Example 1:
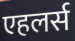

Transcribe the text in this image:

एहलर्स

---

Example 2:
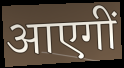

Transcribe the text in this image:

आएगीं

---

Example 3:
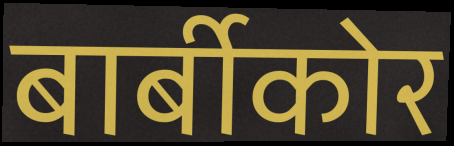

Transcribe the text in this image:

बार्बीकोर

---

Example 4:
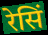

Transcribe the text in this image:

रेसिं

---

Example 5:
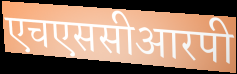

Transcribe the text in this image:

एचएससीआरपी